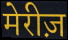
मेरीज़